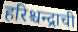
हरिश्चन्द्राची